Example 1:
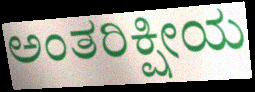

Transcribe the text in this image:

ಅಂತರಿಕ್ಷೀಯ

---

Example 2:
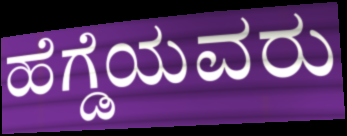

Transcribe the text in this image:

ಹೆಗ್ಡೆಯವರು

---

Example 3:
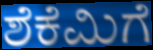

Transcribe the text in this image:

ಶೆಕೆಮಿಗೆ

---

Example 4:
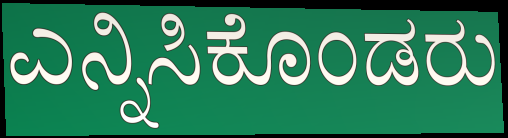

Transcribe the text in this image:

ಎನ್ನಿಸಿಕೊಂಡರು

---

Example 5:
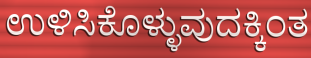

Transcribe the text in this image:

ಉಳಿಸಿಕೊಳ್ಳುವುದಕ್ಕಿಂತ